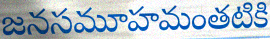
జనసమూహమంతటికి